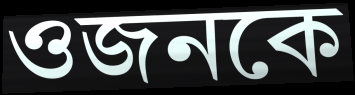
ওজনকে